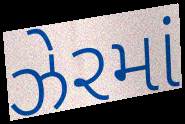
ઝેરમાં